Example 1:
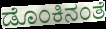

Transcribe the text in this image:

ಡೊಂಕಿನಂತೆ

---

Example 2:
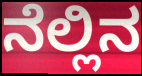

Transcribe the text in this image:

ನೆಲ್ಲಿನ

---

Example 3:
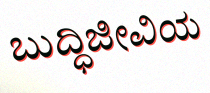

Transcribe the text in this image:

ಬುದ್ಧಿಜೀವಿಯ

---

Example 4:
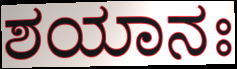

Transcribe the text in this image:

ಶಯಾನಃ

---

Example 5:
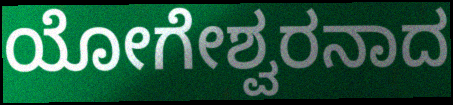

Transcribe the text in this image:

ಯೋಗೇಶ್ವರನಾದ